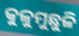
କୁଳୁମୁଛୁଳି